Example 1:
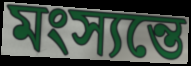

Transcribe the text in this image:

মংস্যন্তে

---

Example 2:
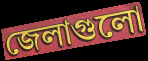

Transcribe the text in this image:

জেলাগুলো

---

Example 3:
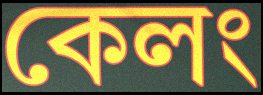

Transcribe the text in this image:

কেলং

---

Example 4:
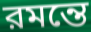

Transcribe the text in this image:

রমন্তে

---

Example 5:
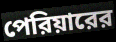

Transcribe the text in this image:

পেরিয়ারের